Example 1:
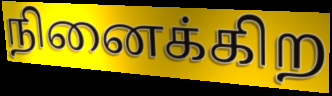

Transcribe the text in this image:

நினைக்கிற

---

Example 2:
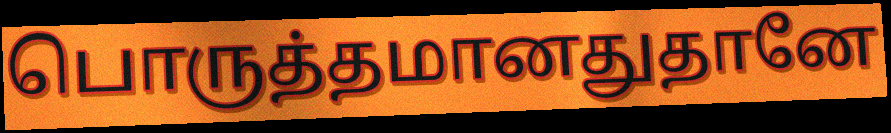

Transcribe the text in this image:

பொருத்தமானதுதானே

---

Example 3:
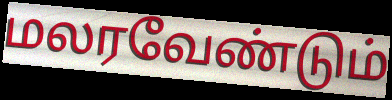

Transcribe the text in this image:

மலரவேண்டும்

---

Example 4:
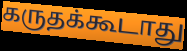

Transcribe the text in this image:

கருதக்கூடாது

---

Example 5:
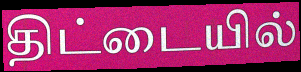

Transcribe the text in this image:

திட்டையில்